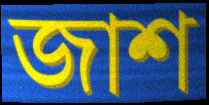
জাশ